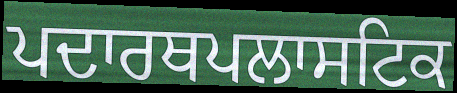
ਪਦਾਰਥਪਲਾਸਟਿਕ